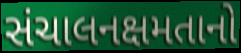
સંચાલનક્ષમતાનો